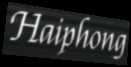
Haiphong